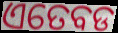
ଏତେବଡ